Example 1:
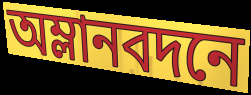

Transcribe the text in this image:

অম্লানবদনে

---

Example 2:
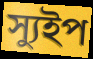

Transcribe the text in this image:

স্যুইপ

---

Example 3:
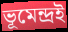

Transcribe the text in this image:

ভূমেন্দ্রই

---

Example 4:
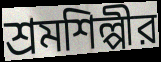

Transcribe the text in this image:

শ্রমশিল্পীর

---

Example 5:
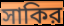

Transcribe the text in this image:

সাকির